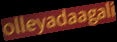
olleyadaagali